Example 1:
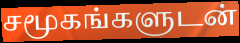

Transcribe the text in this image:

சமூகங்களுடன்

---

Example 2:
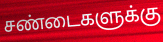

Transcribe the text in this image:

சண்டைகளுக்கு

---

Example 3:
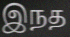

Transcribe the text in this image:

இநத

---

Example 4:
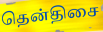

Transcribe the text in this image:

தென்திசை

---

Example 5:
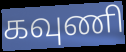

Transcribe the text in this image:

கவுணி